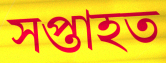
সপ্তাহত